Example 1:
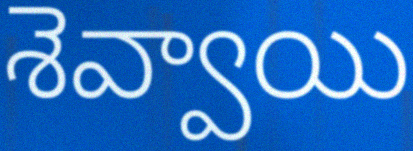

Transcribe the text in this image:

శెవ్వాయి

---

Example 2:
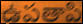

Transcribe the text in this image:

ఉపతాపి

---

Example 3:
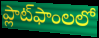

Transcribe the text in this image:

ప్లాట్‌ఫాంలలో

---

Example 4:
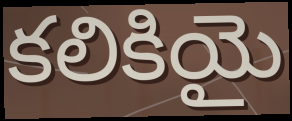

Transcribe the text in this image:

కలికియై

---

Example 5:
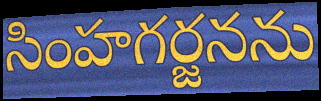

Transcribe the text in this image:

సింహగర్జనను